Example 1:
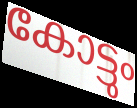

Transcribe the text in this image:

കോട്ടും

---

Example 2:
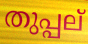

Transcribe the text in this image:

തുപ്പല്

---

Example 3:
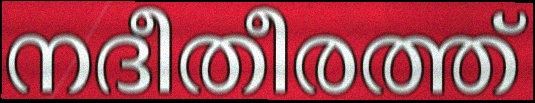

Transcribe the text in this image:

നദീതീരത്ത്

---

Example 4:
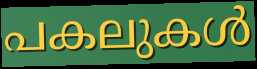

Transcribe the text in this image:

പകലുകൾ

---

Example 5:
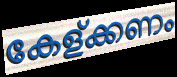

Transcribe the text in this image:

കേള്ക്കണം